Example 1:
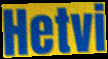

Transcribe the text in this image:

Hetvi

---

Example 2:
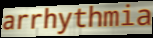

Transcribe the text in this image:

arrhythmia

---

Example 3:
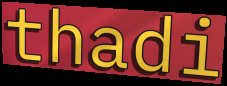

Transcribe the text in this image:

thadi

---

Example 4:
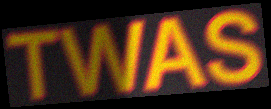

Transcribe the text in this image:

TWAS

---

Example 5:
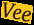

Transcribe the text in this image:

Vee